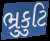
ભ્રુકુટિ